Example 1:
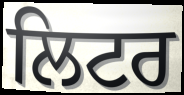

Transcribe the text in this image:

ਲਿਟਰ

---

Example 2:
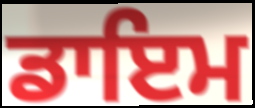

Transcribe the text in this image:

ਡਾਇਮ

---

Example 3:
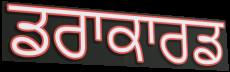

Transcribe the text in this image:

ਡਰਾਕਾਰਡ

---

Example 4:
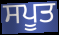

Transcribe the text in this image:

ਸਪੂਤ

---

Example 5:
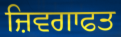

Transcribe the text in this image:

ਜ਼ਿਵਗਾਫਤ